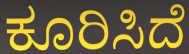
ಕೂರಿಸಿದೆ